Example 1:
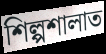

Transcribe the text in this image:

শিল্পশালাত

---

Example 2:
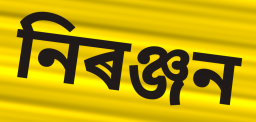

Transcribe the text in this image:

নিৰঞ্জন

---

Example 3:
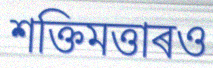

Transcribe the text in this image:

শক্তিমত্তাৰও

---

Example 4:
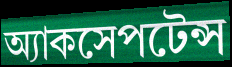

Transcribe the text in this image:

অ্যাকসেপটেন্স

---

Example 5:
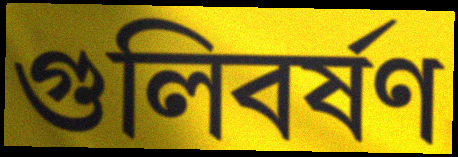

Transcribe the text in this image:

গুলিবৰ্ষণ